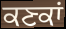
ਕਣਕਾਂ